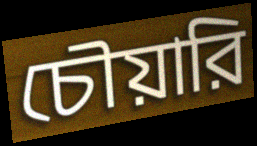
চৌয়ারি